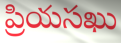
ప్రియసఖు